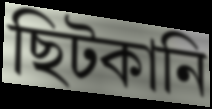
ছিটকানি